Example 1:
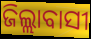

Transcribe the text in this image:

ଜିଲ୍ଲାବାସୀ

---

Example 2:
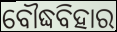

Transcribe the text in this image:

ବୌଦ୍ଧବିହାର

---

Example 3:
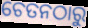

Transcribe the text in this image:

ଚେତନଠାରୁ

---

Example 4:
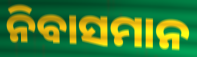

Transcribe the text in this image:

ନିବାସମାନ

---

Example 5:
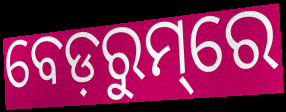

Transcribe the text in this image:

ବେଡ଼ରୁମ୍‌ରେ